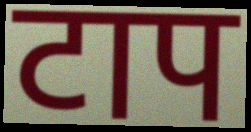
टाप